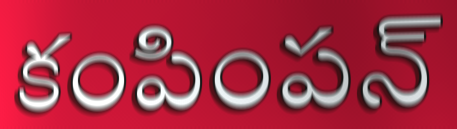
కంపింపన్